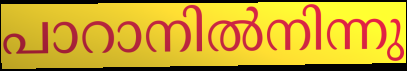
പാറാനിൽനിന്നു